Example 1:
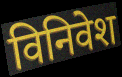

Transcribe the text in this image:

विनिवेश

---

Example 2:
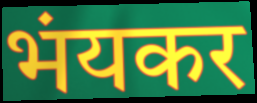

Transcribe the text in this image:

भंयकर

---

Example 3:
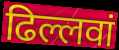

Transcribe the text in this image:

ढिल्लवां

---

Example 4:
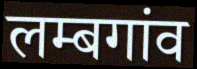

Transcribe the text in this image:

लम्बगांव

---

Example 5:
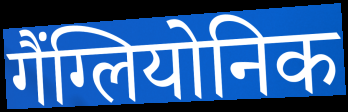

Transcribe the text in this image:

गैंग्लियोनिक